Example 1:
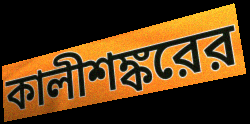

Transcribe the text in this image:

কালীশঙ্করের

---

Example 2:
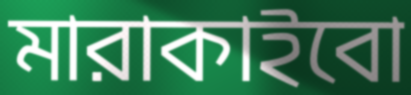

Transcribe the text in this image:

মারাকাইবো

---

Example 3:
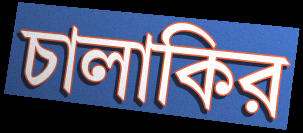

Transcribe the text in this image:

চালাকির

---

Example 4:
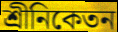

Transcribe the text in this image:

শ্রীনিকেতন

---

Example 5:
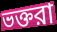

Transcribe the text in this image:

ভক্তরা